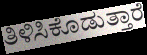
ತಿಳಿಸಿಕೊಡುತ್ತಾರೆ